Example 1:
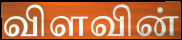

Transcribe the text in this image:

விளவின்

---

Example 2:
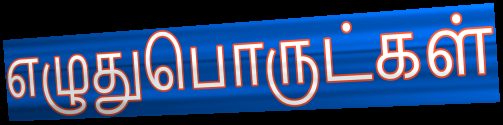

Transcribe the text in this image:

எழுதுபொருட்கள்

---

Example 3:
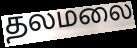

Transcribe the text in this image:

தலமலை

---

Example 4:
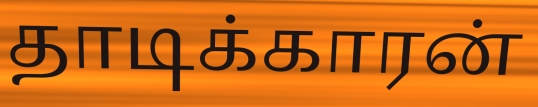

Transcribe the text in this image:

தாடிக்காரன்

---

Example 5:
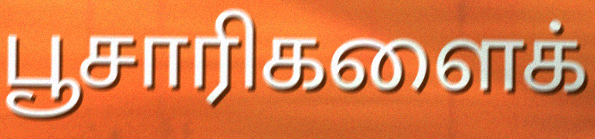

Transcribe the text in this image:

பூசாரிகளைக்